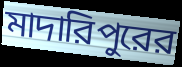
মাদারিপুরের